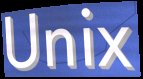
Unix